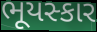
ભૂયસ્કાર